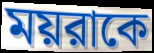
ময়রাকে